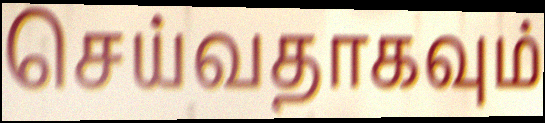
செய்வதாகவும்